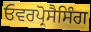
ਓਵਰਪ੍ਰੋਸੈਸਿੰਗ